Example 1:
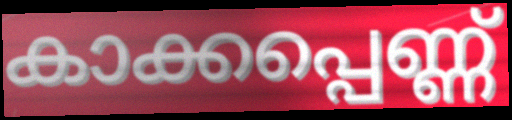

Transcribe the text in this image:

കാക്കപ്പെണ്ണ്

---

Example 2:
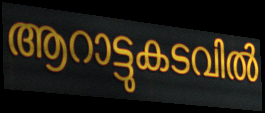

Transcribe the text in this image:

ആറാട്ടുകടവിൽ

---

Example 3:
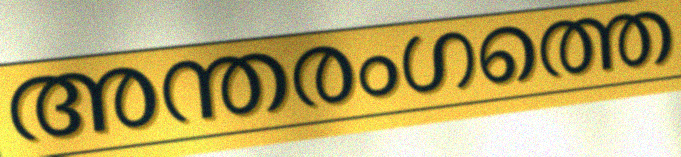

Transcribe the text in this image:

അന്തരംഗത്തെ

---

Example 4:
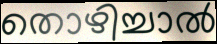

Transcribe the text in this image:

തൊഴിച്ചാൽ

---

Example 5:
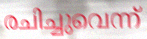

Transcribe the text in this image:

രചിച്ചുവെന്ന്